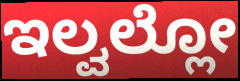
ಇಲ್ವಲ್ಲೋ